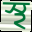
স্থ